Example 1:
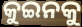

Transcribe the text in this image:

କୁଇନକୁ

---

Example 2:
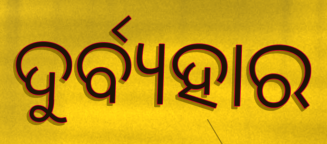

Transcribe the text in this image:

ଦୁର୍ବ୍ୟହାର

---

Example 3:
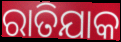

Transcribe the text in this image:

ରାତିଯାକ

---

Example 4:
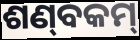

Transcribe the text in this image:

ଶଣ୍‌ବକମ୍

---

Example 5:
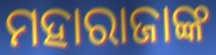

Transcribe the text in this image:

ମହାରାଜାଙ୍କ